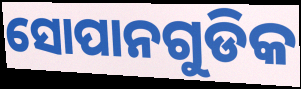
ସୋପାନଗୁଡିକ